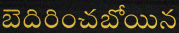
బెదిరించబోయిన